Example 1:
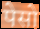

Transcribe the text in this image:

पेसो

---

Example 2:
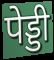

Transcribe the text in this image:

पेड्डी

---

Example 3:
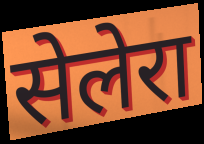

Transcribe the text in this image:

सेलेरा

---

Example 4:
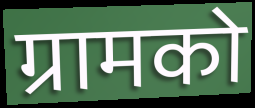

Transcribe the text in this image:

ग्रामको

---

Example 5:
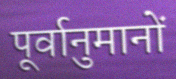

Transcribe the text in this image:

पूर्वानुमानों